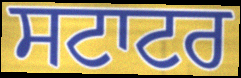
ਸਟਾਟਰ